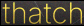
thatch